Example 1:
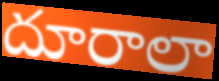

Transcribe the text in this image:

దూరాలా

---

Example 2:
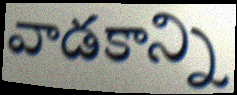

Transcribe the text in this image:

వాడకాన్ని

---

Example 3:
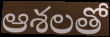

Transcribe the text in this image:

ఆశలతో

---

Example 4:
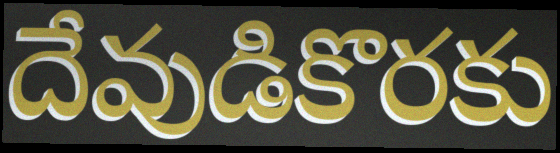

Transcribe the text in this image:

దేవుడికొరకు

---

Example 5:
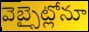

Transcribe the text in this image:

వెబ్సైట్లోనూ